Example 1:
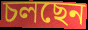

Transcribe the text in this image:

চলছেন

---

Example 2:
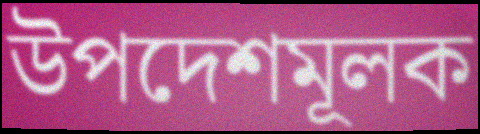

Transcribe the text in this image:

উপদেশমূলক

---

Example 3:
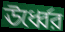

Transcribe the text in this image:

ঊর্ধ্বের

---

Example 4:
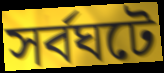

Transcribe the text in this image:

সর্বঘটে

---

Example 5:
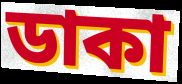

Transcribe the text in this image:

ডাকা